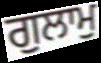
ਗੁਲਾਮੁ